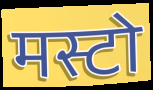
मस्टो